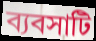
ব্যবসাটি